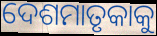
ଦେଶମାତୃକାକୁ